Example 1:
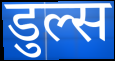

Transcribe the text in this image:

डुल्स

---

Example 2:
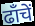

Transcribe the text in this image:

ढाँचें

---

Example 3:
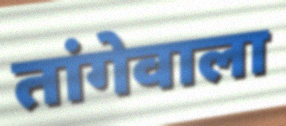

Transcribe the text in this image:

तांगेवाला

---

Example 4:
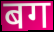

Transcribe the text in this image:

बग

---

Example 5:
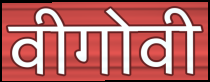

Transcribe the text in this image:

वीगोवी